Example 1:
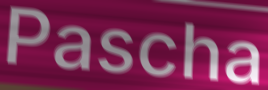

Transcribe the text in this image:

Pascha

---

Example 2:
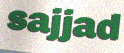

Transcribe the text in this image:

sajjad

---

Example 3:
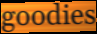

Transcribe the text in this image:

goodies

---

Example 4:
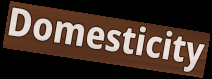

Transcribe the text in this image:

Domesticity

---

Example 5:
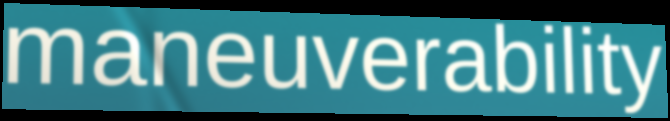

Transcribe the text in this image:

maneuverability